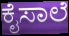
ಕೈಸಾಲೆ